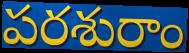
పరశురాం